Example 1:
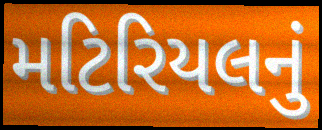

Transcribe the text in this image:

મટિરિયલનું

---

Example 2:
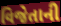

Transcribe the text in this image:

વિજેતાની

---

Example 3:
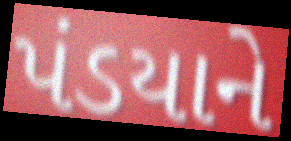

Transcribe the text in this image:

પંડયાને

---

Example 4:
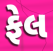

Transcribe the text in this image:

ફેલ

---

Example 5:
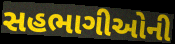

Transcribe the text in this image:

સહભાગીઓની